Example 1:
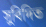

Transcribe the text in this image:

সুবিদিত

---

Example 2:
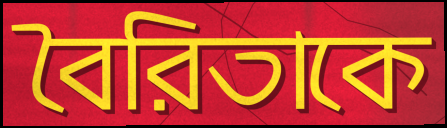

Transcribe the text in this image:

বৈরিতাকে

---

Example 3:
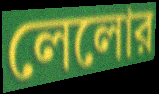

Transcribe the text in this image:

লেলোর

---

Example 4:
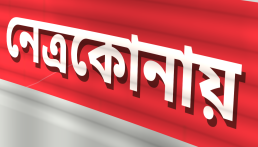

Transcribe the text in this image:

নেত্রকোনায়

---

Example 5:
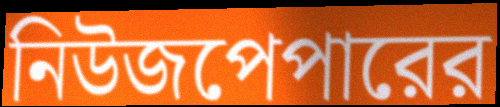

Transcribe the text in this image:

নিউজপেপারের